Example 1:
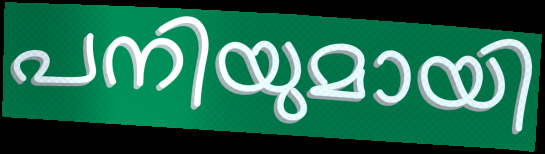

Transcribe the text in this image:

പനിയുമായി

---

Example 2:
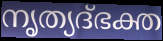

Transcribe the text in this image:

നൃത്യദ്ഭക്ത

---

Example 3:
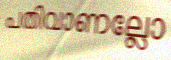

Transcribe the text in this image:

പതിവാണല്ലോ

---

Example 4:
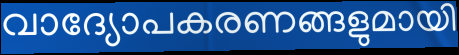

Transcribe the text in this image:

വാദ്യോപകരണങ്ങളുമായി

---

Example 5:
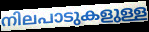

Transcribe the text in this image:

നിലപാടുകളുള്ള